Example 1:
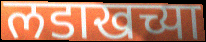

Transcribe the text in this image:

लडाखच्या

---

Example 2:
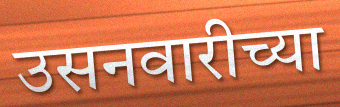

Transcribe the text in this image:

उसनवारीच्या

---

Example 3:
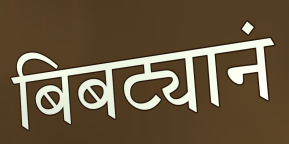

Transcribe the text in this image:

बिबट्यानं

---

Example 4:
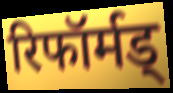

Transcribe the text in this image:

रिफॉर्मड्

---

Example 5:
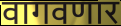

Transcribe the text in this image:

वागवणार